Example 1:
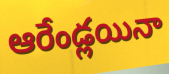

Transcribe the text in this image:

ఆరేండ్లయినా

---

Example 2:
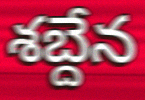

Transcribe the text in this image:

శబ్దేన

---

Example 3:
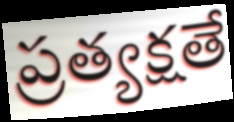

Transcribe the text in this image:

ప్రత్యక్షతే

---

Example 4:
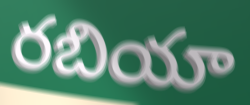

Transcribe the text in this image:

రబియా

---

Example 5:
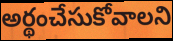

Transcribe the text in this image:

అర్థంచేసుకోవాలని